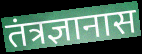
तंत्रज्ञानास